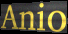
Anio